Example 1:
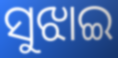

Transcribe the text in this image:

ସୁଝାଇ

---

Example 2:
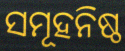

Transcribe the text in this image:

ସମୂହନିଷ୍ଠ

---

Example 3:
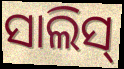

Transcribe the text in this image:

ସାଲିସ୍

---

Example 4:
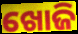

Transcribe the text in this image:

ଖୋଜି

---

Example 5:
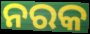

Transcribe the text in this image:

ନରକ